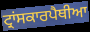
ਟ੍ਰਾਂਸਕਾਰਪੈਥੀਆ